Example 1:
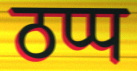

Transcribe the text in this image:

ठप्प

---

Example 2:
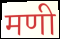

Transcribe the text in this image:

मणी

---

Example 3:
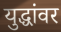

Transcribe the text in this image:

युद्धांवर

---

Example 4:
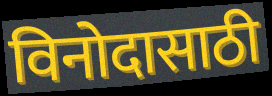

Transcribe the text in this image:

विनोदासाठी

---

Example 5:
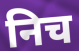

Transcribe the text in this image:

निच